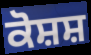
ਕੋਸ਼ਸ਼